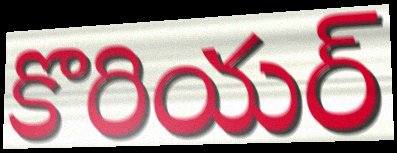
కొరియర్